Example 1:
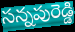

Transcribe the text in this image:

సన్నపురెడ్డి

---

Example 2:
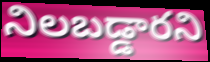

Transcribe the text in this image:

నిలబడ్డారని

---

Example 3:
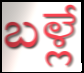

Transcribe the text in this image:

బళ్లే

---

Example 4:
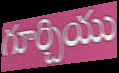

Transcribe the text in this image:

గూర్చియు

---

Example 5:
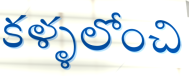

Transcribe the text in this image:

కళ్ళలోంచి